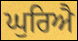
ਘੁਰਿਐ